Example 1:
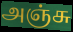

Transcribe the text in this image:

அஞ்சு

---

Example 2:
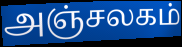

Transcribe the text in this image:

அஞ்சலகம்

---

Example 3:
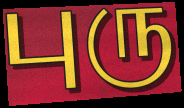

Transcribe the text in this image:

புரு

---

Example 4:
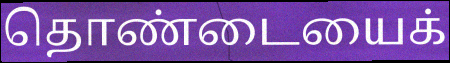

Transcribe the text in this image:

தொண்டையைக்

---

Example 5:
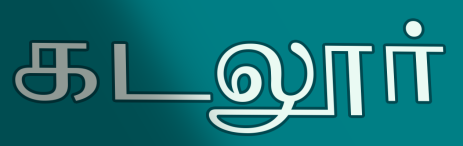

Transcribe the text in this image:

கடலூர்